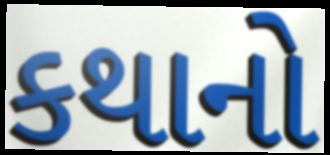
કથાનો